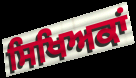
ਸਿਖਿਅਕਾਂ